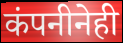
कंपनीनेही